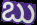
బు